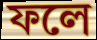
ফলে